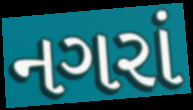
નગરાં